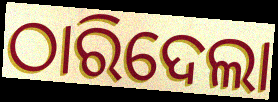
ଠାରିଦେଲା